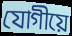
যোগীয়ে